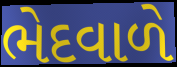
ભેદવાળે